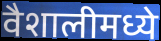
वैशालीमध्ये